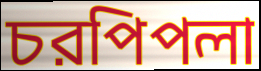
চরপিপলা